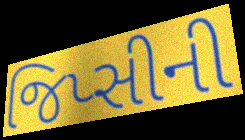
જિપ્સીની